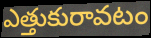
ఎత్తుకురావటం